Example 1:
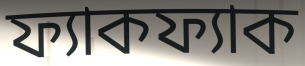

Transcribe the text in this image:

ফ্যাকফ্যাক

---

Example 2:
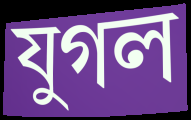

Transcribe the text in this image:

যুগল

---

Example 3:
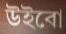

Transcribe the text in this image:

উইবো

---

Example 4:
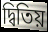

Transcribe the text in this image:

দ্বিতিয়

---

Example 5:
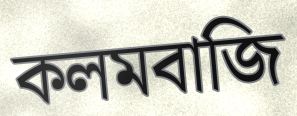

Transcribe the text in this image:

কলমবাজি